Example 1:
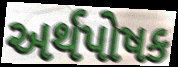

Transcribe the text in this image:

અર્થપોષક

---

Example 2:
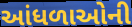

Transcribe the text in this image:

આંધળાઓની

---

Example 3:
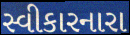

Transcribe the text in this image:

સ્વીકારનારા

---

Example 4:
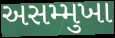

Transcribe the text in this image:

અસમ્મુખા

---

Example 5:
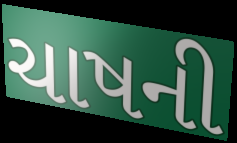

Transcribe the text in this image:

ચાષની